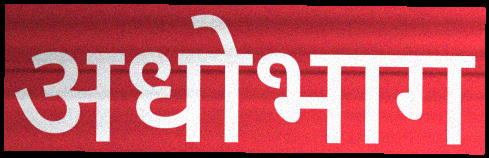
अधोभाग